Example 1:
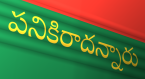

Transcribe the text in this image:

పనికిరాదన్నారు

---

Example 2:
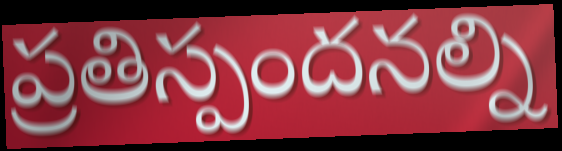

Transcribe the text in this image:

ప్రతిస్పందనల్ని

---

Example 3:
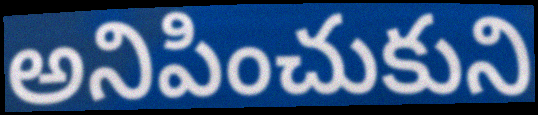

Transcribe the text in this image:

అనిపించుకుని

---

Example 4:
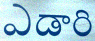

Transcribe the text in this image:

ఎడారి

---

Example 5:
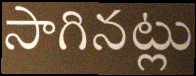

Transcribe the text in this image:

సాగినట్లు